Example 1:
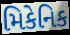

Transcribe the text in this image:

મિકેનિક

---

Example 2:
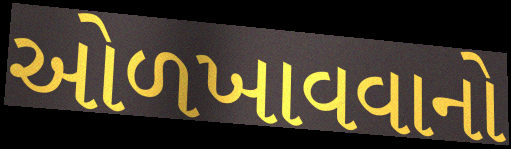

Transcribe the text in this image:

ઓળખાવવાનો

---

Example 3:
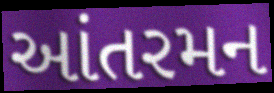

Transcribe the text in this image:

આંતરમન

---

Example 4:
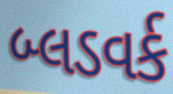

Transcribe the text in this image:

બ્લડવર્ક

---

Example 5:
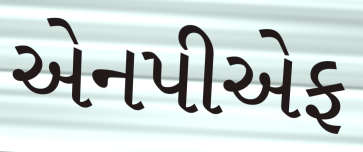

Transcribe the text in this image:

એનપીએફ